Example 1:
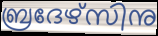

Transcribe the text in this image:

ബ്രദേഴ്സിനു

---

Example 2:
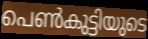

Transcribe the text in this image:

പെൺകുട്ടിയുടെ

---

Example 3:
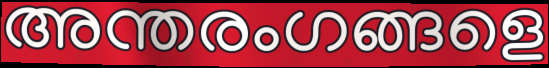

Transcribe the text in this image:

അന്തരംഗങ്ങളെ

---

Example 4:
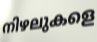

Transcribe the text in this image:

നിഴലുകളെ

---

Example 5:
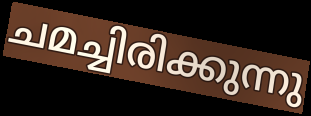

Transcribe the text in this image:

ചമച്ചിരിക്കുന്നു